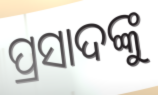
ପ୍ରସାଦଙ୍କୁ